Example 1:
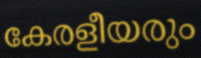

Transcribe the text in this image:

കേരളീയരും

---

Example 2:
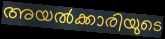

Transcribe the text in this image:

അയൽക്കാരിയുടെ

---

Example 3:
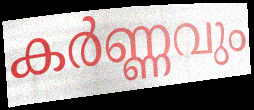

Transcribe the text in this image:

കർണ്ണവും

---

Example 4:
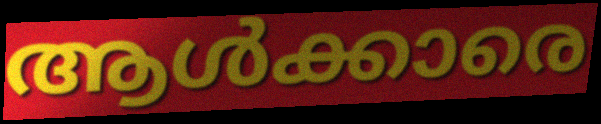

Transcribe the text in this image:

ആൾക്കാരെ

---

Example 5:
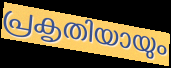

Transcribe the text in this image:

പ്രകൃതിയായും